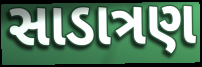
સાડાત્રણ